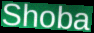
Shoba